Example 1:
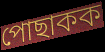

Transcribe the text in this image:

পোছাকক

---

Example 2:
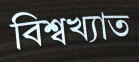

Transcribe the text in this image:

বিশ্বখ্যাত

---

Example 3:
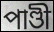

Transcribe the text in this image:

পাণ্ডী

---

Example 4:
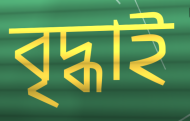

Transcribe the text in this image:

বৃদ্ধাই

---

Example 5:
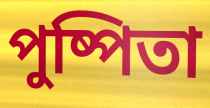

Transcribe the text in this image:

পুষ্পিতা